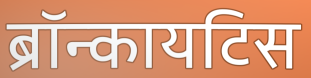
ब्रॉन्कायटिस